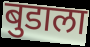
बुडाला